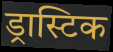
ड्रास्टिक